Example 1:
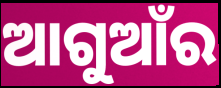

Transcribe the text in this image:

ଆଗୁଆଁର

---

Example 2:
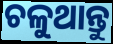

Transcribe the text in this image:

ଚଳୁଥାନ୍ତୁ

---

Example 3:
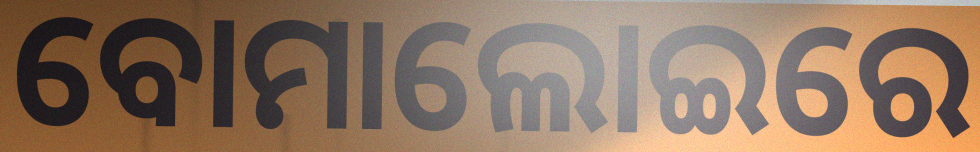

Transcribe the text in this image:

ବୋମାଲୋଇରେ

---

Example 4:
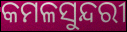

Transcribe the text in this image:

କମଳସୁନ୍ଦରୀ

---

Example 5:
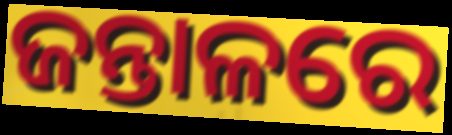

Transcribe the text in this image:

ଜନ୍ତାଳରେ